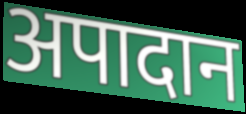
अपादान